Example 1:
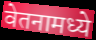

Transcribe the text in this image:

वेतनामध्ये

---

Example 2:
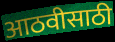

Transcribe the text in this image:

आठवीसाठी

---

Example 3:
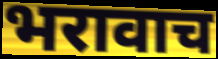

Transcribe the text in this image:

भरावाच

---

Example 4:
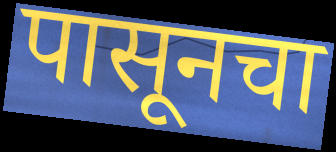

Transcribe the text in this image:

पासूनचा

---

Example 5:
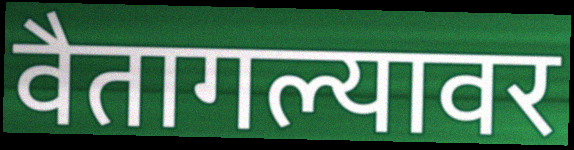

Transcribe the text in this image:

वैतागल्यावर